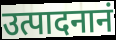
उत्पादनानं